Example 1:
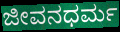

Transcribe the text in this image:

ಜೀವನಧರ್ಮ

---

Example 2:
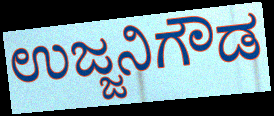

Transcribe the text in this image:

ಉಜ್ಜನಿಗೌಡ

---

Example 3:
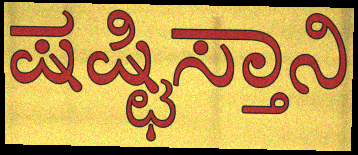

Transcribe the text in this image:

ಷಷ್ಟಿಸ್ತಾನಿ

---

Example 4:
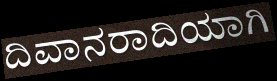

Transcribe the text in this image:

ದಿವಾನರಾದಿಯಾಗಿ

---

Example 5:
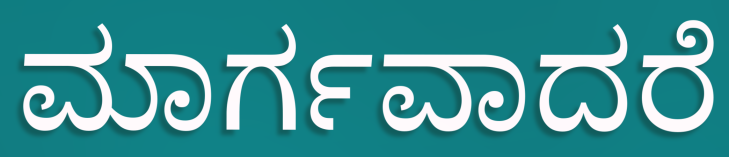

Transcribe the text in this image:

ಮಾರ್ಗವಾದರೆ